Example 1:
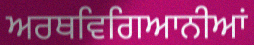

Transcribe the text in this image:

ਅਰਥਵਿਗਿਆਨੀਆਂ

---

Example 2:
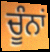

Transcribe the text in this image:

ਚੂੰਨਾਂ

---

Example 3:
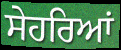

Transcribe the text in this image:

ਸੇਹਰਿਆਂ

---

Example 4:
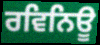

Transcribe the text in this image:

ਰਵਿਨਿਊ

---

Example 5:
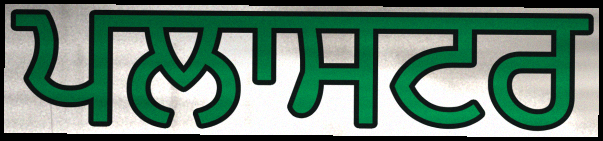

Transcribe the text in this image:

ਪਲਾਸਟਰ